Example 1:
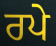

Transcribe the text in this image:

ਰਪੇ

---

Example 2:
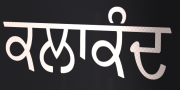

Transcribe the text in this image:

ਕਲਾਕੰਦ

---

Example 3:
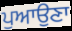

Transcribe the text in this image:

ਪੁਆਉਣਾ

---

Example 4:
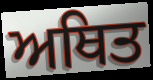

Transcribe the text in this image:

ਅਥਿਤ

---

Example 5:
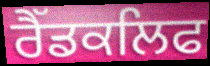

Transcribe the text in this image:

ਰੈੱਡਕਲਿਫ